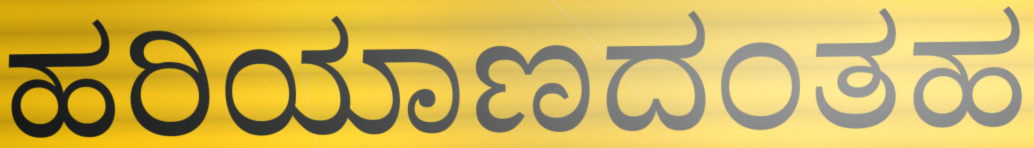
ಹರಿಯಾಣದಂತಹ